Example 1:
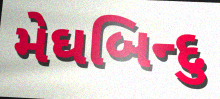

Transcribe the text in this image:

મેઘબિન્દુ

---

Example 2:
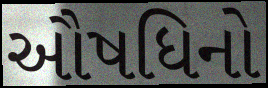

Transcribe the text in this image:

ઔષધિનો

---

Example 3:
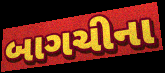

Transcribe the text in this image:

બાગચીના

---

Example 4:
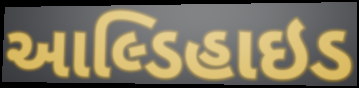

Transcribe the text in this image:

આલ્ડિહાઇડ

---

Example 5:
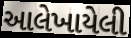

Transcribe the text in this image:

આલેખાયેલી